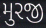
મુરજી